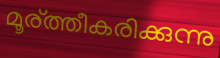
മൂര്ത്തീകരിക്കുന്നു